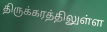
திருக்கரத்திலுள்ள